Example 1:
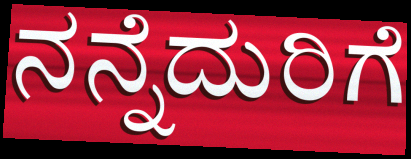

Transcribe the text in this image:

ನನ್ನೆದುರಿಗೆ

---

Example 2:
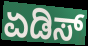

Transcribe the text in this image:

ಏಡಿಸ್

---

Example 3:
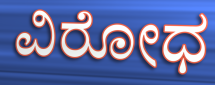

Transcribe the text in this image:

ವಿರೋಧ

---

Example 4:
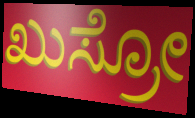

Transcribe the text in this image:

ಖುಸ್ರೋ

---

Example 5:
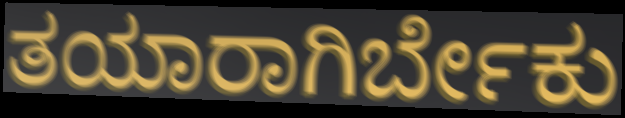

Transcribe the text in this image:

ತಯಾರಾಗಿರ್ಬೇಕು